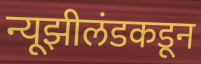
न्यूझीलंडकडून